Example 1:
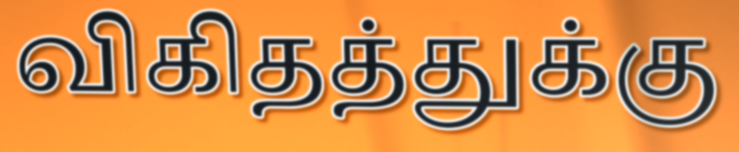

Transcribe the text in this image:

விகிதத்துக்கு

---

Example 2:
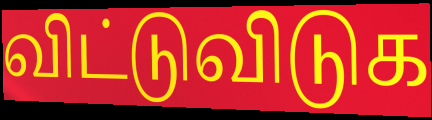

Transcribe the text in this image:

விட்டுவிடுக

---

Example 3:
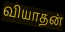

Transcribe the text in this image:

வியாதன்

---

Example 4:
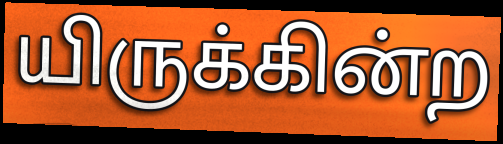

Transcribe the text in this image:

யிருக்கின்ற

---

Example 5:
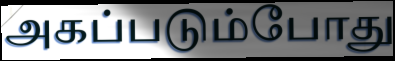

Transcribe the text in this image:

அகப்படும்போது